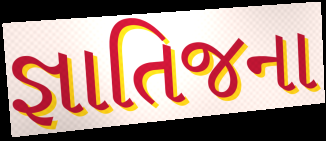
જ્ઞાતિજના